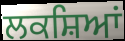
ਲਕਸ਼ਿਆਂ